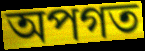
অপগত